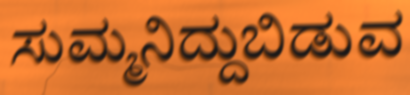
ಸುಮ್ಮನಿದ್ದುಬಿಡುವ